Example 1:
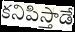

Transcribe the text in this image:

కనిపిస్తాడే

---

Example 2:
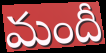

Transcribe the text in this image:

మందీ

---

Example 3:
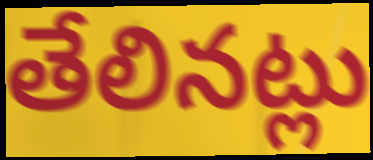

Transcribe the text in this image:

తేలినట్లు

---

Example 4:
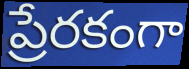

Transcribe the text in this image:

ప్రేరకంగా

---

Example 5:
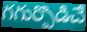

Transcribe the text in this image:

గగుర్పొడిచే